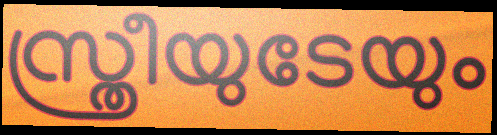
സ്ത്രീയുടേയും